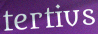
tertius